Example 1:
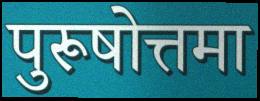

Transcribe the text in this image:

पुरूषोत्तमा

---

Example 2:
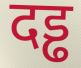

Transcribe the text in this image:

दड्ढ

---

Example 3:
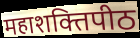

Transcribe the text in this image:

महाशक्तिपीठ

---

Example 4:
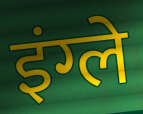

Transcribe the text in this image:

इंग्ले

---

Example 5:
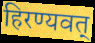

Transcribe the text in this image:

हिरण्यवत्